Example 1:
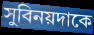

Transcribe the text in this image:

সুবিনয়দাকে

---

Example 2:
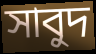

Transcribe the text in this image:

সাবুদ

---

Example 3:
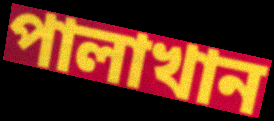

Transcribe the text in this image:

পালাখান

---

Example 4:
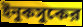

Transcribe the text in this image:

ইনুকসুকের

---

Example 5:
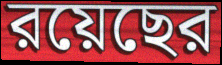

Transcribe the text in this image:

রয়েছের